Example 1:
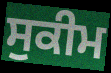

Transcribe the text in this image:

ਸੁਕੀਮ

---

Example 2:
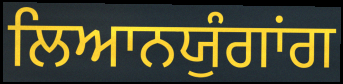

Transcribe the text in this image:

ਲਿਆਨਯੁੰਗਾਂਗ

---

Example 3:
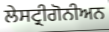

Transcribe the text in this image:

ਲੇਸਟ੍ਰੀਗੋਨੀਅਨ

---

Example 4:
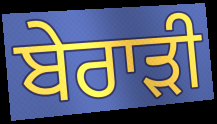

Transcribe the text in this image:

ਬੇਰਾੜੀ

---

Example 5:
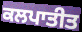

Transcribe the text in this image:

ਕਲਪਾਤੀਤ